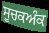
ਸੂਚਕਅੰਕ